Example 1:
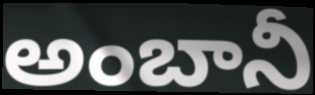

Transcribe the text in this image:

అంబానీ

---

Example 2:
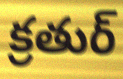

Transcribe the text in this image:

క్రతుర్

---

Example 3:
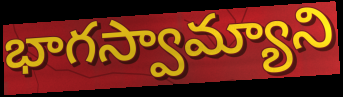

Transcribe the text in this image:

భాగస్వామ్యాని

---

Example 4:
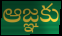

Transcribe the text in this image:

ఆజ్ఞకు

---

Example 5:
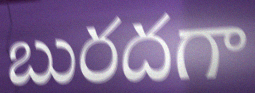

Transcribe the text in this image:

బురదగా